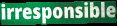
irresponsible